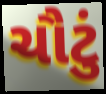
ચૌટું